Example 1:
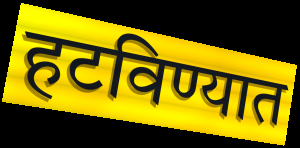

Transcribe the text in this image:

हटविण्यात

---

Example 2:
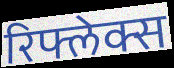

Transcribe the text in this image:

रिफ्लेक्स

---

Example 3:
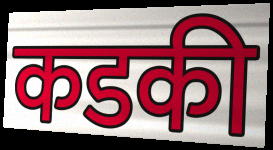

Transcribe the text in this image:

कडकी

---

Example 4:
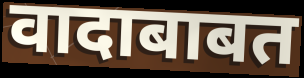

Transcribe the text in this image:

वादाबाबत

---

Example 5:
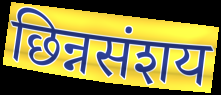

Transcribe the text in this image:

छिन्नसंशय